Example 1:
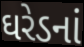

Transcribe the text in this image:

ઘરેડનાં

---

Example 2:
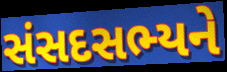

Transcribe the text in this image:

સંસદસભ્યને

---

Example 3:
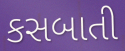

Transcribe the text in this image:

કસબાતી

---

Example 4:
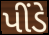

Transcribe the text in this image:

પીંડે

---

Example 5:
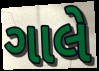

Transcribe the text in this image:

ગાલે